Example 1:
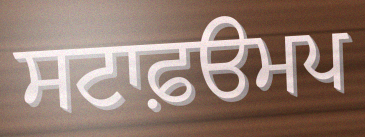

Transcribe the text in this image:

ਸਟਾਫ਼ੳਮਪ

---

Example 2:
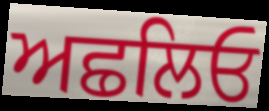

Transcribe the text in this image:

ਅਛਲਿਓ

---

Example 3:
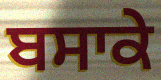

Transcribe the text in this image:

ਬਸਾਕੇ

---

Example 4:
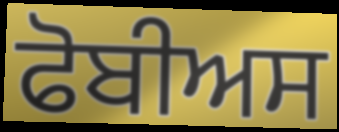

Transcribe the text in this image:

ਫੋਬੀਅਸ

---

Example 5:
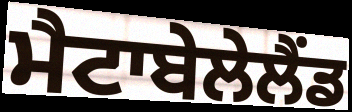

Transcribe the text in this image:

ਮੈਟਾਬੇਲੇਲੈਂਡ